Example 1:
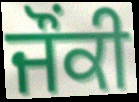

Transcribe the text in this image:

ਜੌਂਕੀ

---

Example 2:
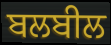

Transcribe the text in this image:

ਬਲਬੀਲ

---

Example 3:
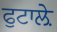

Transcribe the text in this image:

ਫੁਟਾਲ਼ੇ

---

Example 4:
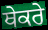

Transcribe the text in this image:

ਥੇਕਰੇ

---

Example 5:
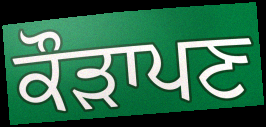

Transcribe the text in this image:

ਕੌੜਾਪਣ